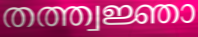
തത്ത്വജ്ഞാ